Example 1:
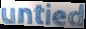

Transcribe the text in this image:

untied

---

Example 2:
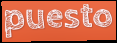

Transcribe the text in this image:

puesto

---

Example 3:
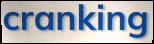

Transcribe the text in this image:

cranking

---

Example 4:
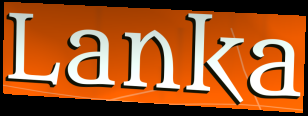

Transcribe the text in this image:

Lanka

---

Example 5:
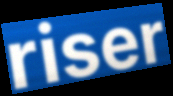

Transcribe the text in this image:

riser